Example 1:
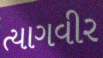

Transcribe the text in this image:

ત્યાગવીર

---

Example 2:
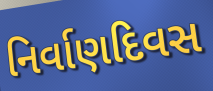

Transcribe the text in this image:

નિર્વાણદિવસ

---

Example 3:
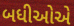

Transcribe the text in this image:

બધીઓએ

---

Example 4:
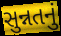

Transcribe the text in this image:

સુન્નતનું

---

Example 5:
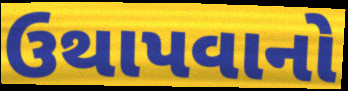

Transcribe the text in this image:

ઉથાપવાનો